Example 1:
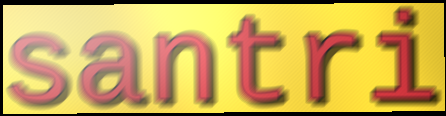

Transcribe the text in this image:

santri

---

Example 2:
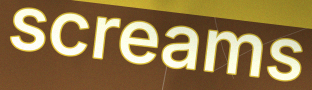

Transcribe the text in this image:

screams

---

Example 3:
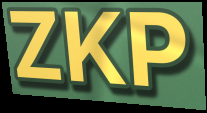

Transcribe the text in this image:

ZKP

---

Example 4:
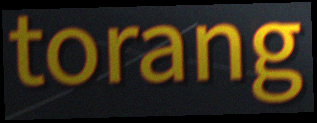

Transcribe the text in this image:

torang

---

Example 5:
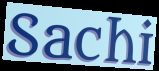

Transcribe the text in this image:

Sachi